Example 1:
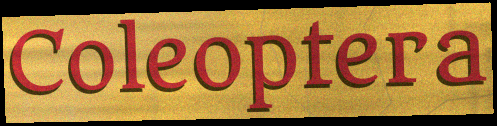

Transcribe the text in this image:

Coleoptera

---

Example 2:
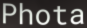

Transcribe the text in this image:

Phota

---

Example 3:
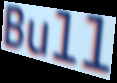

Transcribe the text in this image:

Bull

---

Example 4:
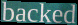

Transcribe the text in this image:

backed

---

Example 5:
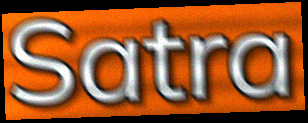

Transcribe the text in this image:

Satra